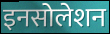
इनसोलेशन